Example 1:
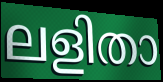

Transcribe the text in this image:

ലളിതാ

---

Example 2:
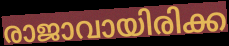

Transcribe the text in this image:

രാജാവായിരിക്ക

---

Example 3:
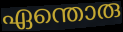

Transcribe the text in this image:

ഏന്തൊരു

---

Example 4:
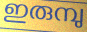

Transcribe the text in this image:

ഇരുമ്പു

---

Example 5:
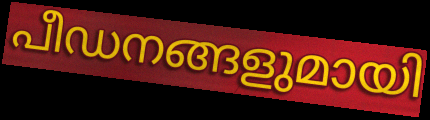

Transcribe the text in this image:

പീഡനങ്ങളുമായി